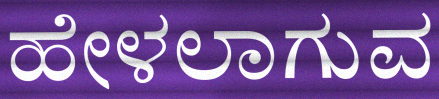
ಹೇಳಲಾಗುವ